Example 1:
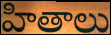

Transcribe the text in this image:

హితాలు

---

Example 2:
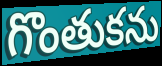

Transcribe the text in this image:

గొంతుకను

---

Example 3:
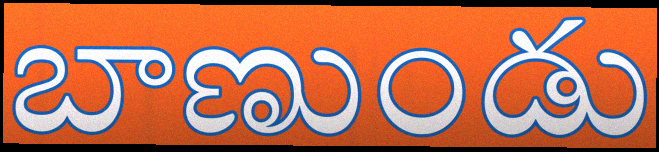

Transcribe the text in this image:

బాణుండు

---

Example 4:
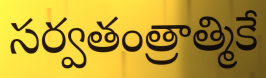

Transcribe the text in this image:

సర్వతంత్రాత్మికే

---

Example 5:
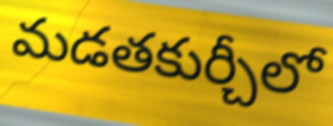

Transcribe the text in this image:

మడతకుర్చీలో